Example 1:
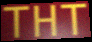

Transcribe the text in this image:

THT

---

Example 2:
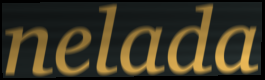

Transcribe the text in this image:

nelada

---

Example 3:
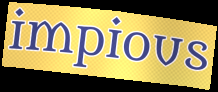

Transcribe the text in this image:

impious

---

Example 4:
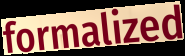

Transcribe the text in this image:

formalized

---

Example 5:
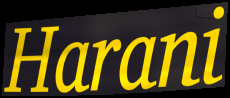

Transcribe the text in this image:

Harani